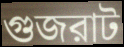
গুজরাট